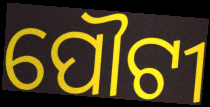
ପୌଟୀ